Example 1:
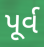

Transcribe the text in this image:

પૂર્વ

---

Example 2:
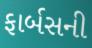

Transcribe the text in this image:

ફાર્બસની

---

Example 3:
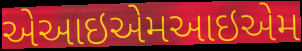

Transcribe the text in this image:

એઆઇએમઆઇએમ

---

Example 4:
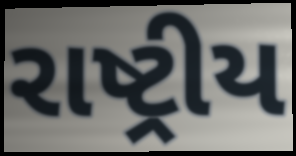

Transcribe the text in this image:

રાષ્ટ્રીય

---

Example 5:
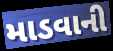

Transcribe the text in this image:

માડવાની